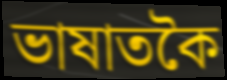
ভাষাতকৈ